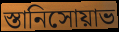
স্তানিসোয়াভ